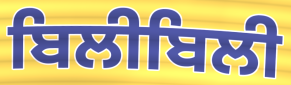
ਬਿਲੀਬਿਲੀ